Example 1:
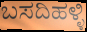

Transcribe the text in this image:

ಬಸದಿಹಳ್ಳಿ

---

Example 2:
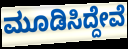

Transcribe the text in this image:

ಮೂಡಿಸಿದ್ದೇವೆ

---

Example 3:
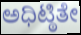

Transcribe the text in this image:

ಅಧಿಟ್ಠಿತೇ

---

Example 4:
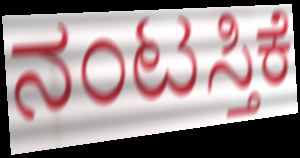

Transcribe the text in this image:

ನಂಟಸ್ತಿಕೆ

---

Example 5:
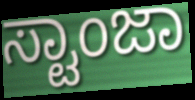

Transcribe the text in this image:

ಸ್ಟಾಂಜಾ